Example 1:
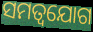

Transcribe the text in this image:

ସମତ୍ୱଯୋଗ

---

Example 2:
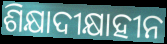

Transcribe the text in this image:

ଶିକ୍ଷାଦୀକ୍ଷାହୀନ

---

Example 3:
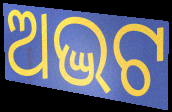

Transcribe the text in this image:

ଅଦ୍ଭଟ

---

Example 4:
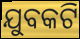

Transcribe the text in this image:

ଯୁବକଟି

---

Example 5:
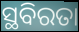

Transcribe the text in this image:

ସ୍ଥବିରତା